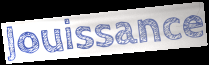
Jouissance